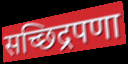
सच्छिद्रपणा